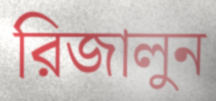
রিজালুন